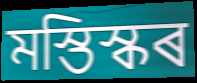
মস্তিস্কৰ